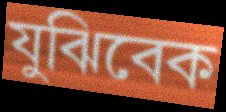
যুঝিবেক